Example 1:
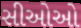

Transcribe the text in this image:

સીઓઓ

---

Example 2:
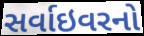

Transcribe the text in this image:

સર્વાઇવરનો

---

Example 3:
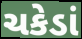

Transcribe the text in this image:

ચકેડાં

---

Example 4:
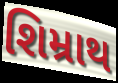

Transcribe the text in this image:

શિમ્રાથ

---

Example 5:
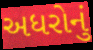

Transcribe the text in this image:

અધરોનું